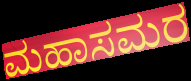
ಮಹಾಸಮರ